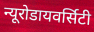
न्यूरोडायवर्सिटी